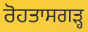
ਰੋਹਤਾਸਗੜ੍ਹ